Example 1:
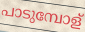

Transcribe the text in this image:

പാടുമ്പോള്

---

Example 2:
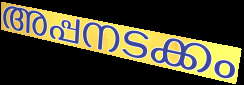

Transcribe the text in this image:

അപ്പനടക്കം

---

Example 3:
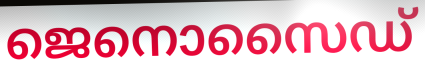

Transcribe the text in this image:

ജെനൊസൈഡ്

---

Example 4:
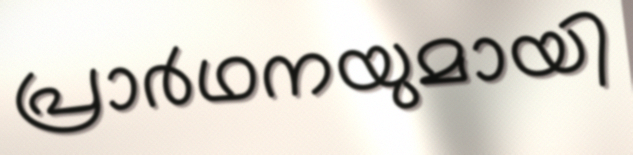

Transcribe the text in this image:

പ്രാർഥനയുമായി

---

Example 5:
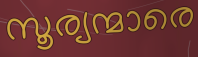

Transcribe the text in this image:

സൂര്യന്മാരെ